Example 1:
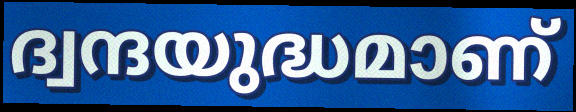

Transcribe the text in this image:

ദ്വന്ദയുദ്ധമാണ്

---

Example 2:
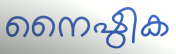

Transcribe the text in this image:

നൈഷ്ഠിക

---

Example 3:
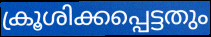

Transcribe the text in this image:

ക്രൂശിക്കപ്പെട്ടതും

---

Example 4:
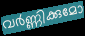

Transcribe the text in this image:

വർണ്ണിക്കുമോ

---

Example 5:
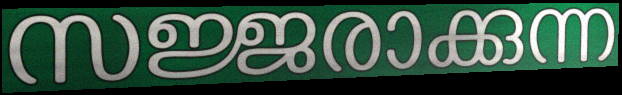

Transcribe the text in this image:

സജ്ജരാക്കുന്ന